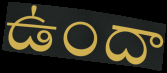
ఉందా